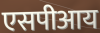
एसपीआय